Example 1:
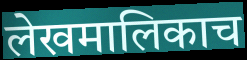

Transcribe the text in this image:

लेखमालिकाच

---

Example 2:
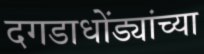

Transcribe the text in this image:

दगडाधोंड्यांच्या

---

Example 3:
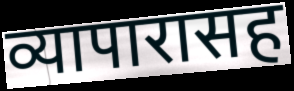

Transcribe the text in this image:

व्यापारासह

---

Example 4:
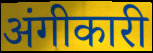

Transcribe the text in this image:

अंगीकारी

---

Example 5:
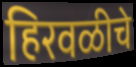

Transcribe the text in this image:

हिरवळीचे